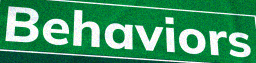
Behaviors